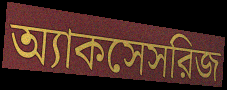
অ্যাকসেসরিজ